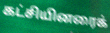
கட்சியினரைக்